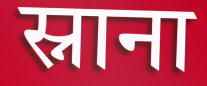
स्नाना